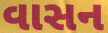
વાસન